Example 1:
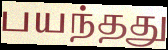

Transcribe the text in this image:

பயந்தது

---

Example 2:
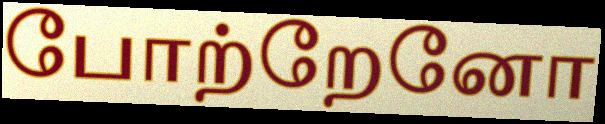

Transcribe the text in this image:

போற்றேனோ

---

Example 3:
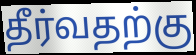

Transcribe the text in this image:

தீர்வதற்கு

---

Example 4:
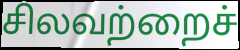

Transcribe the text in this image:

சிலவற்றைச்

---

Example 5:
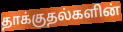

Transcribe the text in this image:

தாக்குதல்களின்